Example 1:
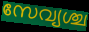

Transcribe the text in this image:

സേവ്യശ്ച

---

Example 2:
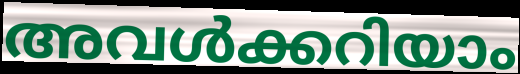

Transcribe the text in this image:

അവൾക്കറിയാം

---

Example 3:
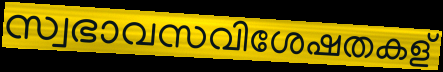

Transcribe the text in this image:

സ്വഭാവസവിശേഷതകള്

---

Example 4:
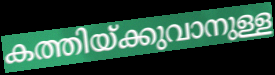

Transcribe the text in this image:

കത്തിയ്ക്കുവാനുള്ള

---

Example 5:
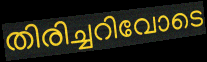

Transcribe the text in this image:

തിരിച്ചറിവോടെ